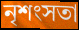
নৃশংসতা